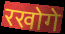
रखोगे